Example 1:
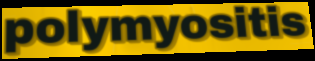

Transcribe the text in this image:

polymyositis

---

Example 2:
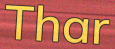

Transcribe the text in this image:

Thar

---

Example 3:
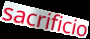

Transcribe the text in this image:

sacrificio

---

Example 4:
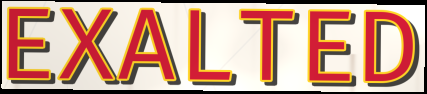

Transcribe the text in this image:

EXALTED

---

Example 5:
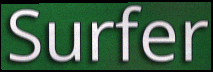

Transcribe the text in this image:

Surfer